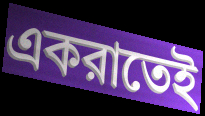
একরাতেই